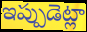
ఇప్పుడెట్లా